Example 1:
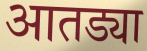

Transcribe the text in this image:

आतड्या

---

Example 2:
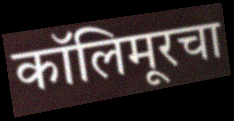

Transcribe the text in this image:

कॉलिमूरचा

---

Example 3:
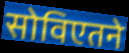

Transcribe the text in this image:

सोविएतने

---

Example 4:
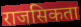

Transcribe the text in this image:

राजसिकता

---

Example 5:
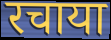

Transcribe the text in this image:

रचाया